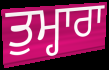
ਤੁਮ੍ਹਾਰਾ